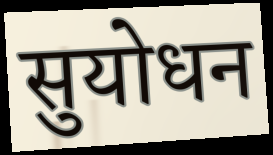
सुयोधन